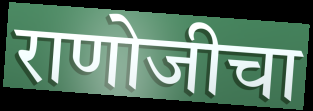
राणोजीचा